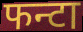
फन्टा